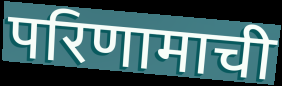
परिणामाची